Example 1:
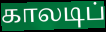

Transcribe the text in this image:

காலடிப்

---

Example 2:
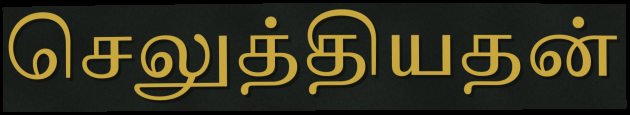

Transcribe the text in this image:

செலுத்தியதன்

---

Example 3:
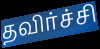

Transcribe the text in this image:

தவிர்ச்சி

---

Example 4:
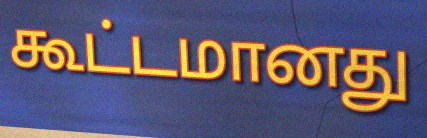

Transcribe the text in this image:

கூட்டமானது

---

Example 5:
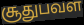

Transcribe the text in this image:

சூதுபவள